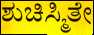
ಶುಚಿಸ್ಮಿತೇ